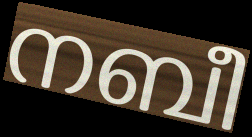
നബീ